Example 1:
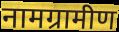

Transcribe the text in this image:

नामग्रामीण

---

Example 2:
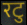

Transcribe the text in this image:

रटु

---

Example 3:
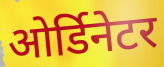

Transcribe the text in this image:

ओर्डिनेटर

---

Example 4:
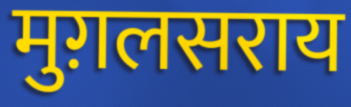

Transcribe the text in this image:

मुग़लसराय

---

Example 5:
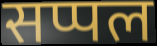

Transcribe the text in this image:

सप्पल